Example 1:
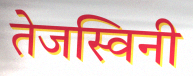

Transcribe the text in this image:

तेजस्विनी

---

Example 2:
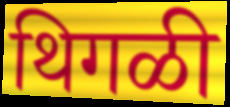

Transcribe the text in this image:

थिगळी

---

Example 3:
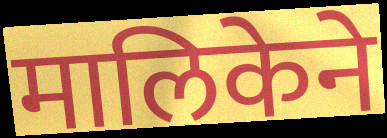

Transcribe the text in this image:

मालिकेने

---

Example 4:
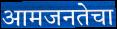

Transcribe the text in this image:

आमजनतेचा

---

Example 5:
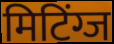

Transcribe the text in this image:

मिटिंग्ज